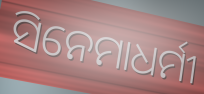
ସିନେମାଧର୍ମୀ